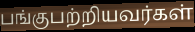
பங்குபற்றியவர்கள்